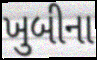
ખુબીના